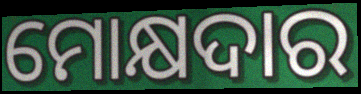
ମୋକ୍ଷଦାର